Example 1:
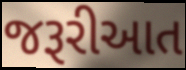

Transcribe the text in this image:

જરૂરીઆત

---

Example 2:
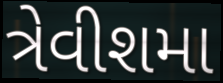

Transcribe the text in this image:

ત્રેવીશમા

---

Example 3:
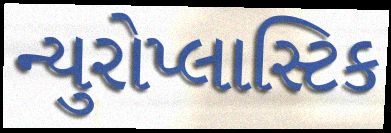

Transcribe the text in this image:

ન્યુરોપ્લાસ્ટિક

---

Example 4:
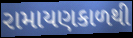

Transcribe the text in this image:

રામાયણકાળથી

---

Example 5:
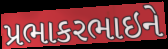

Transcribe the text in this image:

પ્રભાકરભાઇને